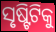
ସୃଷ୍ଟିଟିକୁ